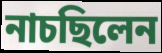
নাচছিলেন